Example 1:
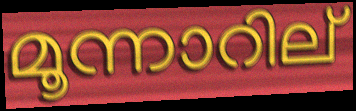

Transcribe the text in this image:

മൂന്നാറില്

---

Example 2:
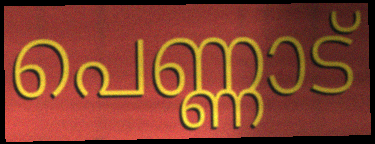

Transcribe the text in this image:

പെണ്ണാട്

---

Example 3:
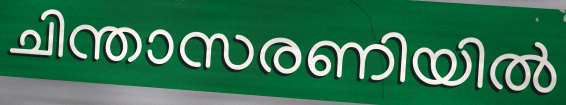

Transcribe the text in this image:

ചിന്താസരണിയിൽ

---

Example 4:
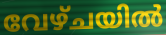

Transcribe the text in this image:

വേഴ്ചയിൽ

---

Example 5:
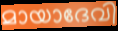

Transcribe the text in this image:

മായാദേവി